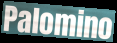
Palomino